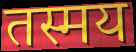
तस्मय